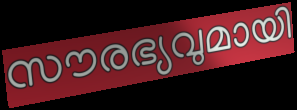
സൗരഭ്യവുമായി